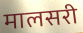
मालसरी